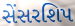
સેંસરશિપ